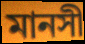
মানসী